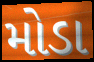
મોડા